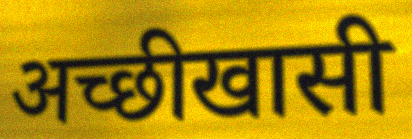
अच्छीखासी